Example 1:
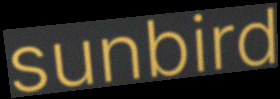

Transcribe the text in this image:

sunbird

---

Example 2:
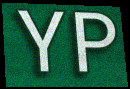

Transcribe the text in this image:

YP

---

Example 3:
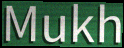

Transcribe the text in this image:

Mukh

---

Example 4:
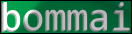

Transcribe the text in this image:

bommai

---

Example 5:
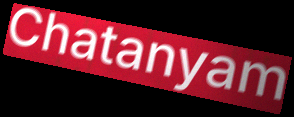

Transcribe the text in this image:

Chatanyam